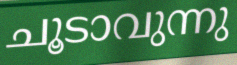
ചൂടാവുന്നു